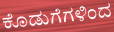
ಕೊಡುಗೆಗಳಿಂದ